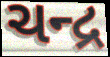
ચન્દ્ર